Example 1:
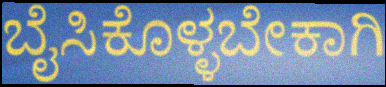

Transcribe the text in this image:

ಬೈಸಿಕೊಳ್ಳಬೇಕಾಗಿ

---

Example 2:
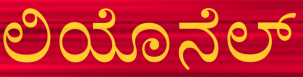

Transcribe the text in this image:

ಲಿಯೊನೆಲ್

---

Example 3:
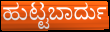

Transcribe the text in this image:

ಹುಟ್ಟಬಾರ್ದು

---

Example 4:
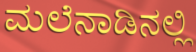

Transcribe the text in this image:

ಮಲೆನಾಡಿನಲ್ಲಿ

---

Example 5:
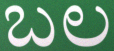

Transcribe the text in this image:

ಬಲ